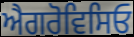
ਐਗਰੋਵਿਸਿਓ